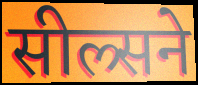
सील्सने